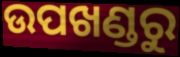
ଉପଖଣ୍ଡରୁ